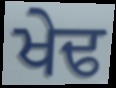
ਖੇਢ